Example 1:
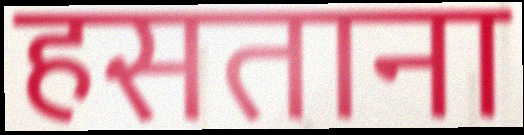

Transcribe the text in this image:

हसताना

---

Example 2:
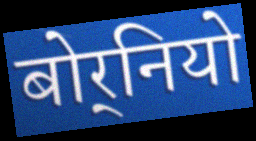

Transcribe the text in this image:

बोर्नियो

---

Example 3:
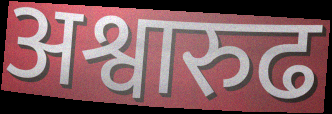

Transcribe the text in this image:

अश्वारुढ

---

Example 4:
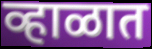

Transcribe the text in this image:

व्हाळात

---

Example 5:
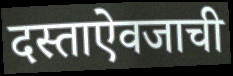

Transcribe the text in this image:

दस्ताऐवजाची